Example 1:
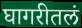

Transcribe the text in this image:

घागरीतलं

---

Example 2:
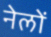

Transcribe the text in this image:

नेलों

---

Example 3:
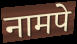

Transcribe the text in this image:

नामपे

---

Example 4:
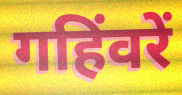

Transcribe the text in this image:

गहिंवरें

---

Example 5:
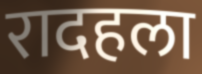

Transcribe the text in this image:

रादहला